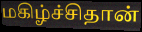
மகிழ்ச்சிதான்